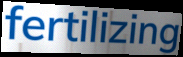
fertilizing